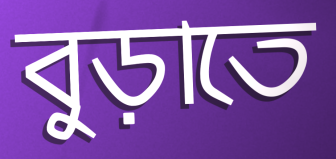
বুড়াতে